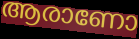
ആരാണോ